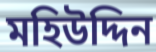
মহিউদ্দিন